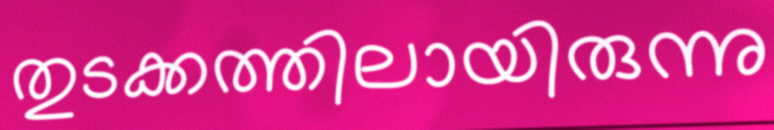
തുടക്കത്തിലായിരുന്നു